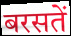
बरसतें